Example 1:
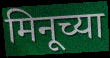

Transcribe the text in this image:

मिनूच्या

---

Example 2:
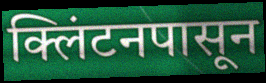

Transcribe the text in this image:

क्लिंटनपासून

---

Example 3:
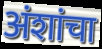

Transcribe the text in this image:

अंशांचा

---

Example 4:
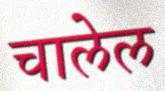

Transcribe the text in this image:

चालेल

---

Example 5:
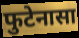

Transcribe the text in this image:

फुटेनासा